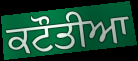
ਕਟੌਤੀਆ